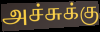
அச்சுக்கு